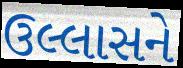
ઉલ્લાસને